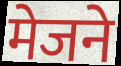
मेजने